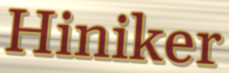
Hiniker